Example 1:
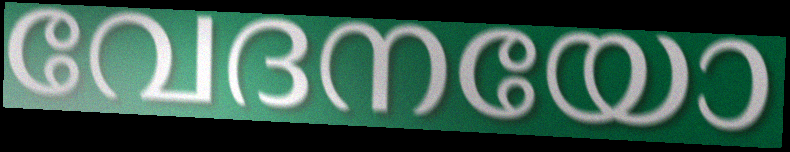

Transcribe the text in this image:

വേദനയോ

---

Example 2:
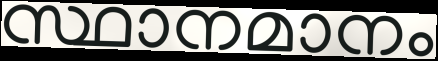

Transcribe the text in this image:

സ്ഥാനമാനം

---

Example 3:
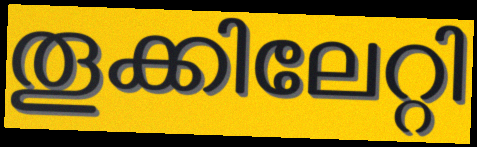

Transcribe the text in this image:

തൂക്കിലേറ്റി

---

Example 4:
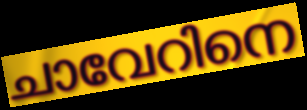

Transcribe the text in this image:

ചാവേറിനെ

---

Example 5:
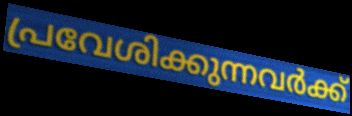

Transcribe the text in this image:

പ്രവേശിക്കുന്നവർക്ക്